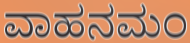
ವಾಹನಮಂ